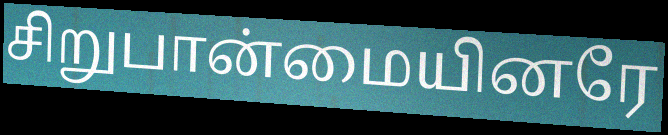
சிறுபான்மையினரே